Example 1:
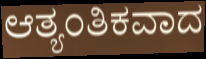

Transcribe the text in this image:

ಆತ್ಯಂತಿಕವಾದ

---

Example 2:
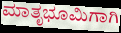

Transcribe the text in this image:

ಮಾತೃಭೂಮಿಗಾಗಿ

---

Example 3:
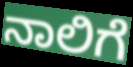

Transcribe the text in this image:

ನಾಲಿಗೆ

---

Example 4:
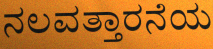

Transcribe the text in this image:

ನಲವತ್ತಾರನೆಯ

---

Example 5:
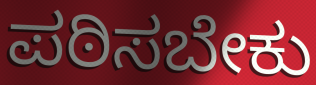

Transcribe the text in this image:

ಪಠಿಸಬೇಕು